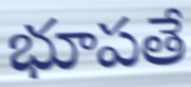
భూపతే